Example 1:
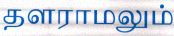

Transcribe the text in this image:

தளராமலும்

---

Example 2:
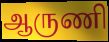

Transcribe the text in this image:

ஆருணி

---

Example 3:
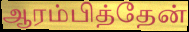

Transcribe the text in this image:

ஆரம்பித்தேன்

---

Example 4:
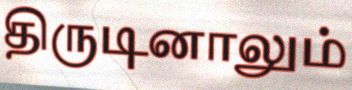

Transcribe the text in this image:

திருடினாலும்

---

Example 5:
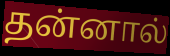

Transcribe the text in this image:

தன்னால்